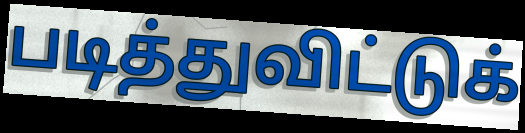
படித்துவிட்டுக்